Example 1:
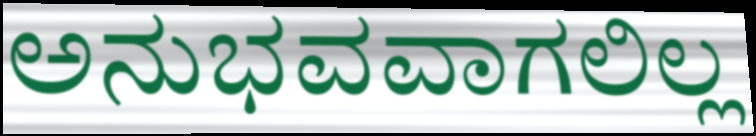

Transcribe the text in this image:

ಅನುಭವವಾಗಲಿಲ್ಲ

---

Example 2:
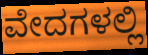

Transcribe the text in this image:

ವೇದಗಳಲ್ಲಿ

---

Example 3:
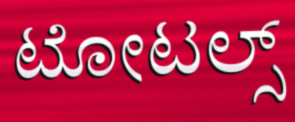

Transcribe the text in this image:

ಟೋಟಲ್ಸ್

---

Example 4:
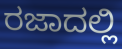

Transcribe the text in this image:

ರಜಾದಲ್ಲಿ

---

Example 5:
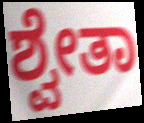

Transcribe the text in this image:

ಶ್ವೇತಾ